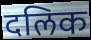
दलिक